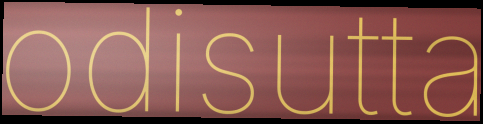
odisutta